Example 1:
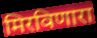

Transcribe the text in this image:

मिरविणारा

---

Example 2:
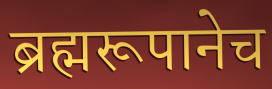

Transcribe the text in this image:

ब्रह्मरूपानेच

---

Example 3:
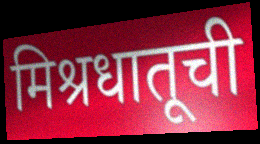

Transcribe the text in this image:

मिश्रधातूची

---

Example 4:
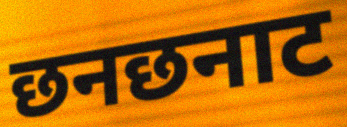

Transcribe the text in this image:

छनछनाट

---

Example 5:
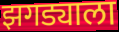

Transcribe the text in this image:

झगड्याला